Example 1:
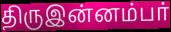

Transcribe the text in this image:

திருஇன்னம்பர்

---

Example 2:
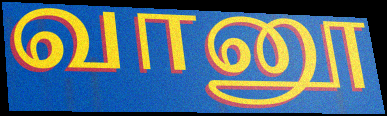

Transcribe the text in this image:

வானூ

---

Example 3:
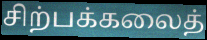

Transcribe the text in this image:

சிற்பக்கலைத்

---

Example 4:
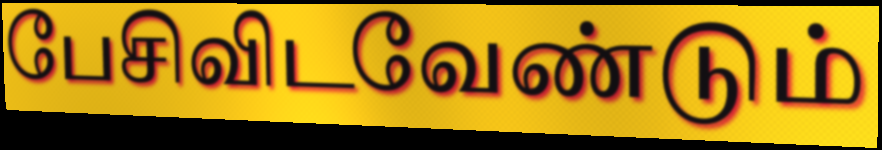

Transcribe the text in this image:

பேசிவிடவேண்டும்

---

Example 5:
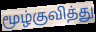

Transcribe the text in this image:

மூழ்குவித்து